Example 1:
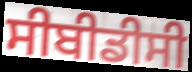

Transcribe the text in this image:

ਸੀਬੀਡੀਸੀ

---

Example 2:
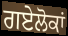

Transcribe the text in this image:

ਗਏਲੋਕਾਂ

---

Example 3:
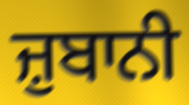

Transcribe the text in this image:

ਜ਼ੁਬਾਨੀ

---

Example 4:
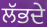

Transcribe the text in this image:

ਲੱਭਦੇ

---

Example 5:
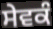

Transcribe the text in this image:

ਸੇਵਕੰ